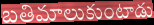
బతిమాలుకుంటాడు